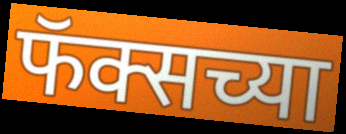
फॅक्सच्या